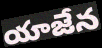
యాజేన